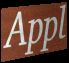
Appl